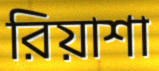
রিয়াশা